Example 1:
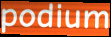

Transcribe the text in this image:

podium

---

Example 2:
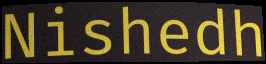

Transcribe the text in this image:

Nishedh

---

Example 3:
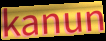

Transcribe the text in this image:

kanun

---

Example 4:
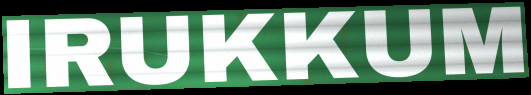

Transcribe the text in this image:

IRUKKUM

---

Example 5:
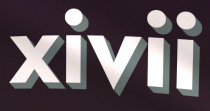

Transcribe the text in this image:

xivii